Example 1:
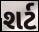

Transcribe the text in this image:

શર્ટ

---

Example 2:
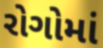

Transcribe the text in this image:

રોગોમાં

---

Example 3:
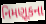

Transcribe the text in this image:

નિમણૂકના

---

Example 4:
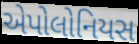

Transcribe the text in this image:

એપોલોનિયસ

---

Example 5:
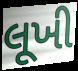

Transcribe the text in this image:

લૂખી